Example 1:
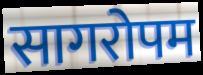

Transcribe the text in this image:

सागरोपम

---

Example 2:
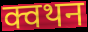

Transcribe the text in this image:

क्वथन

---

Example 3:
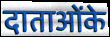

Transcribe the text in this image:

दाताओंके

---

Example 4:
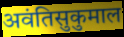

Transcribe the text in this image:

अवंतिसुकुमाल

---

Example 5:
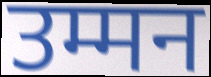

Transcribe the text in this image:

उम्मन